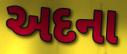
અદના